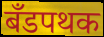
बँडपथक